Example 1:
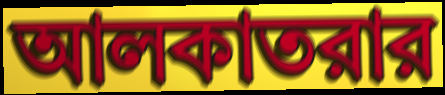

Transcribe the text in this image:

আলকাতরার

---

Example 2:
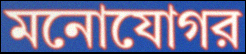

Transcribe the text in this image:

মনোযোগর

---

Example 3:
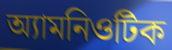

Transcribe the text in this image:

অ্যামনিওটিক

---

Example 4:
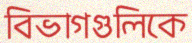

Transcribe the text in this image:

বিভাগগুলিকে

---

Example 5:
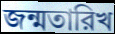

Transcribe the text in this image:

জন্মতারিখ